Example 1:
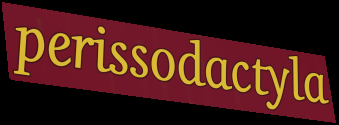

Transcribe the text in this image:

perissodactyla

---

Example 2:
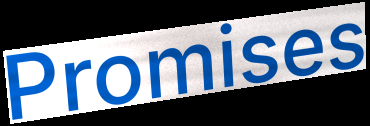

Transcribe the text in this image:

Promises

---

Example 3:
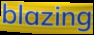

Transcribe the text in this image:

blazing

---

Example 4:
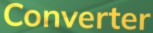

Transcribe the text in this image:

Converter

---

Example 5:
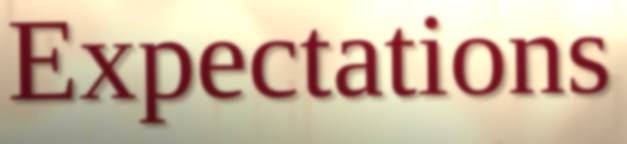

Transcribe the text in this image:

Expectations